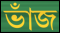
ভাঁজ